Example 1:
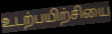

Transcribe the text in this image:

உடற்பயிற்சியை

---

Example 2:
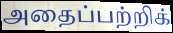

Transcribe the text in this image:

அதைப்பற்றிக்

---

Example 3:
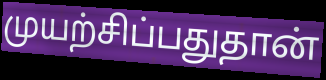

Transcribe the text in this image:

முயற்சிப்பதுதான்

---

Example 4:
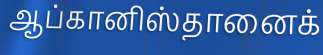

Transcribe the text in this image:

ஆப்கானிஸ்தானைக்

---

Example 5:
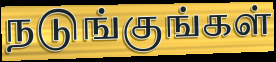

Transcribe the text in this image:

நடுங்குங்கள்